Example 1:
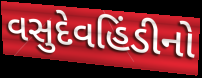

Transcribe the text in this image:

વસુદેવહિંડીનો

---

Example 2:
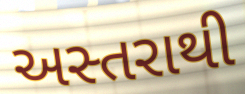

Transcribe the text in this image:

અસ્તરાથી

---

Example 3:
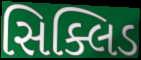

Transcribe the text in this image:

સિક્લિડ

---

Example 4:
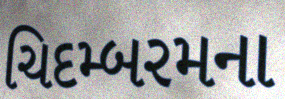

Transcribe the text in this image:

ચિદમ્બરમના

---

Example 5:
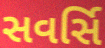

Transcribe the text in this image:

સવર્સિ